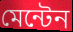
মেন্টেন